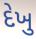
દેખુ